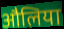
औलिया